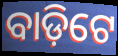
ବାଡ଼ିଟେ